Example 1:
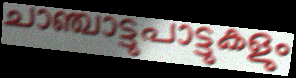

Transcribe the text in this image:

ചാഞ്ചാട്ടുപാട്ടുകളും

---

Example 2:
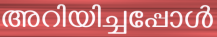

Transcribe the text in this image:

അറിയിച്ചപ്പോൾ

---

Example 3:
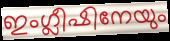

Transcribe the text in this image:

ഇംഗ്ലീഷിനേയും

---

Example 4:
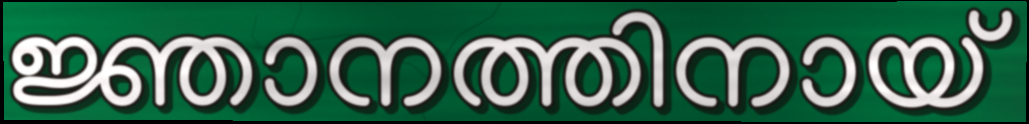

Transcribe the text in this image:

ജ്ഞാനത്തിനായ്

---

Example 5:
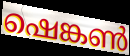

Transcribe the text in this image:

ഷെങ്കൺ